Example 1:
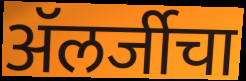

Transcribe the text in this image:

ॲलर्जीचा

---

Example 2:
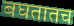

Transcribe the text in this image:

बघतातच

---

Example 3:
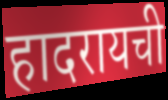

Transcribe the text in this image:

हादरायची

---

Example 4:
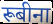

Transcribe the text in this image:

रूबीना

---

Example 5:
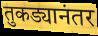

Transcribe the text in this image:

तुकड्यानंतर